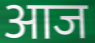
आज